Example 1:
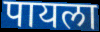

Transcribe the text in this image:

पायला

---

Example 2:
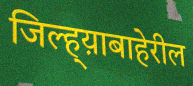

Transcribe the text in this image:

जिल्ह्य़ाबाहेरील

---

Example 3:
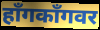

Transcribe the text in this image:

हॉंगकॉंगवर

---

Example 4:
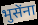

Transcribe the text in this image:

भुसेंना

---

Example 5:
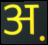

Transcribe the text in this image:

अ़